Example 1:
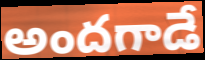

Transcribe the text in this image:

అందగాడే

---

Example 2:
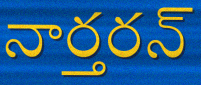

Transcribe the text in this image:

నార్తరన్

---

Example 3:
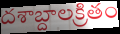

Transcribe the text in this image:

దశాబ్దాలక్రితం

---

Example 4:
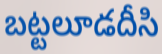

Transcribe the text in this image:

బట్టలూడదీసి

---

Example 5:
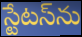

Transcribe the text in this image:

స్టేటస్‌ను